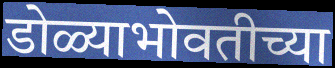
डोळ्याभोवतीच्या